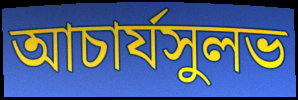
আচার্যসুলভ